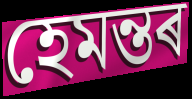
হেমন্তৰ